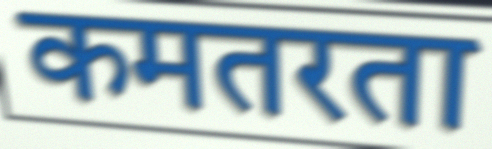
कमतरता